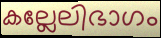
കല്ലേലിഭാഗം